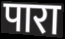
पारा